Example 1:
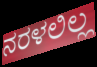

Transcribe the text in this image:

ನರಳಲಿಲ್ಲ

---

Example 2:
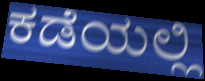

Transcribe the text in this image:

ಕಡೆಯಲ್ಲಿ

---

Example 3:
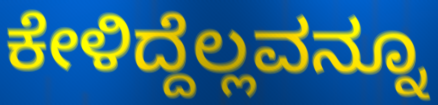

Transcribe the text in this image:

ಕೇಳಿದ್ದೆಲ್ಲವನ್ನೂ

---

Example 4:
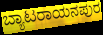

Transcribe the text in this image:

ಬ್ಯಾಟರಾಯನಪುರ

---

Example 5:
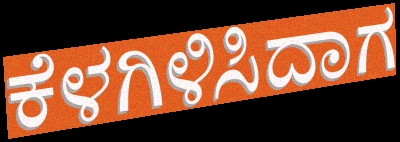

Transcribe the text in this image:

ಕೆಳಗಿಳಿಸಿದಾಗ